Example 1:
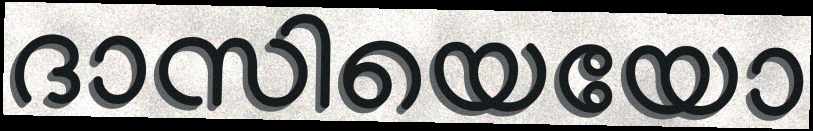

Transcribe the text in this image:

ദാസിയെയോ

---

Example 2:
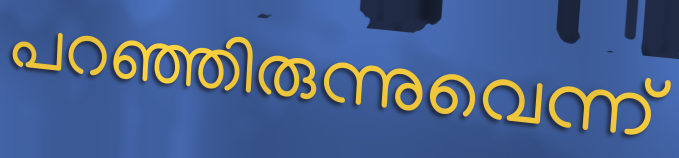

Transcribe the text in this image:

പറഞ്ഞിരുന്നുവെന്ന്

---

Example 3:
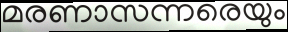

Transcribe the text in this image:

മരണാസന്നരെയും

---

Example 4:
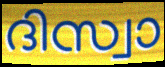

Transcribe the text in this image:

ദിസ്വാ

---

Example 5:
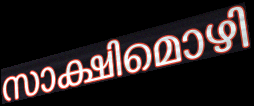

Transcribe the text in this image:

സാക്ഷിമൊഴി